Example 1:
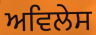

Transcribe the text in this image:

ਅਵਿਲੇਸ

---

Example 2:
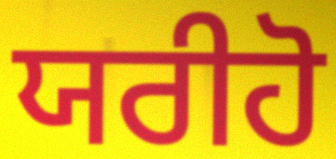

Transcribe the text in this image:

ਯਰੀਹੋ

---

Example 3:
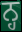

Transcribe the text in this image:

ਨ੍ਹ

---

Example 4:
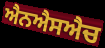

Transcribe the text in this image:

ਐਨਐਸਐਚ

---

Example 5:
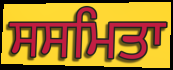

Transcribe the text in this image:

ਸਸਮਿਤਾ